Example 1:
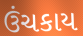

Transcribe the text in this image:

ઉંચકાય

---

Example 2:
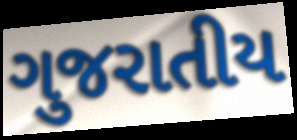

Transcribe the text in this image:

ગુજરાતીય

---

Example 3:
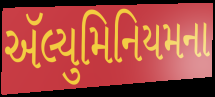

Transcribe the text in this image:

ઍલ્યુમિનિયમના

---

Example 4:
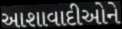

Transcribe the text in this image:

આશાવાદીઓને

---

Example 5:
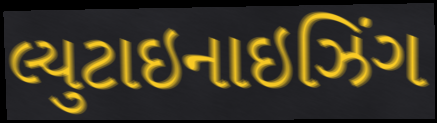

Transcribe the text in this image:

લ્યુટાઇનાઇઝિંગ